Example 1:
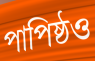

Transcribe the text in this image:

পাপিষ্ঠও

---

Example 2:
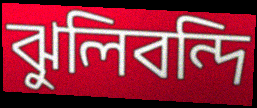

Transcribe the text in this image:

ঝুলিবন্দি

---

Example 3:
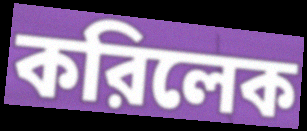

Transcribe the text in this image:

করিলেক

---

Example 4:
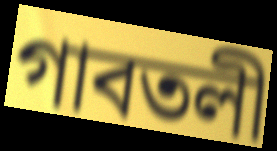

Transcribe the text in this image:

গাবতলী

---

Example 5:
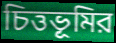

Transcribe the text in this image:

চিত্তভূমির